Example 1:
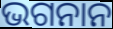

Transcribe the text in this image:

ଭଗନାନ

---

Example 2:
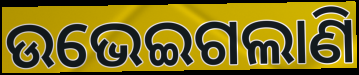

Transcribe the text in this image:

ଉଭେଇଗଲାଣି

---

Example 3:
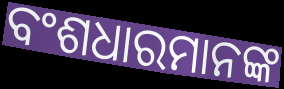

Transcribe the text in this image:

ବଂଶଧାରମାନଙ୍କ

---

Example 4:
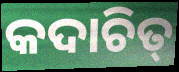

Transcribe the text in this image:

କଦାଚିତ୍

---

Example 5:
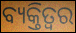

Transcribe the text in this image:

ବ୍ୟକ୍ତିତ୍ବର